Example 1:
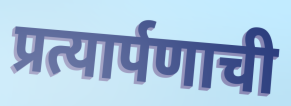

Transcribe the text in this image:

प्रत्यार्पणाची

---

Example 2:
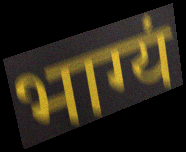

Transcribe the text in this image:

भाग्यं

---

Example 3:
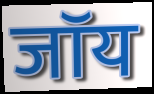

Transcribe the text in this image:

जॉय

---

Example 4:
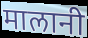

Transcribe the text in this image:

मालानी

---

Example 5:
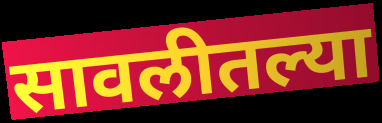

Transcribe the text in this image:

सावलीतल्या